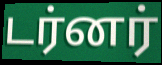
டர்னர்